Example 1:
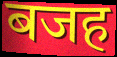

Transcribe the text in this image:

बजह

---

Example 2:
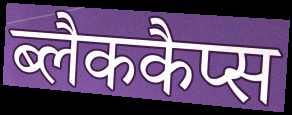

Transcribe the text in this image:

ब्लैककैप्स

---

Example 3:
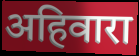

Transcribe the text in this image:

अहिवारा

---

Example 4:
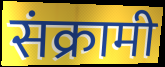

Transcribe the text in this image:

संक्रामी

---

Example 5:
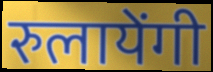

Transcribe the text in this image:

रुलायेंगी